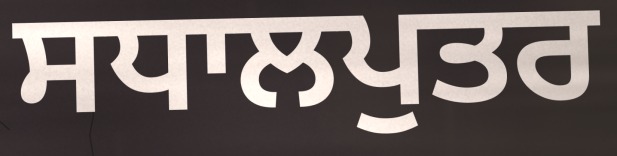
ਸਧਾਲਪੁਤਰ